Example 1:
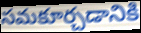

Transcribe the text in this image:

సమకూర్చడానికి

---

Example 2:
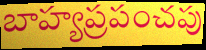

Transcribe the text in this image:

బాహ్యప్రపంచపు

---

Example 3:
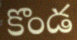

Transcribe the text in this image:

కొండ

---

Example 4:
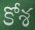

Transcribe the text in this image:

కోశ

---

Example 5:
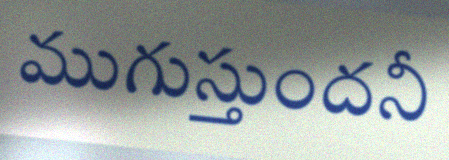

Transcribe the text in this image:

ముగుస్తుందనీ